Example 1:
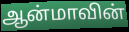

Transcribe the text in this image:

ஆன்மாவின்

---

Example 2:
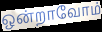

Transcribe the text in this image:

ஒன்றாவோம்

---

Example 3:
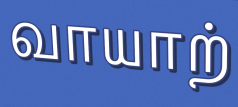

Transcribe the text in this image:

வாயாற்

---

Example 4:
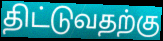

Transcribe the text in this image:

திட்டுவதற்கு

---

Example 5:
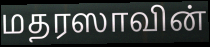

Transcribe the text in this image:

மதரஸாவின்